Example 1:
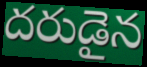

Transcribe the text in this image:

దరుడైన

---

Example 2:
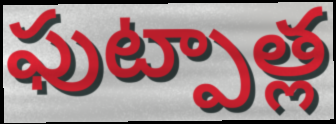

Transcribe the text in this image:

ఫుట్పాత్ల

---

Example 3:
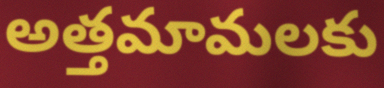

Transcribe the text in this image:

అత్తమామలకు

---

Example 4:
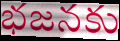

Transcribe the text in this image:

భజనకు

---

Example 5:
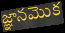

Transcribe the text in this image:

జ్ఞానమొక